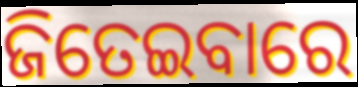
ଜିତେଇବାରେ